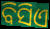
ବିସିଏ